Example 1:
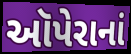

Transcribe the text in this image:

ઑપેરાનાં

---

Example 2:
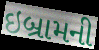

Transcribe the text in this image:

ઇબ્રામની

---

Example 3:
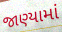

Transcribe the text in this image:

જાણ્યામાં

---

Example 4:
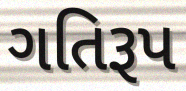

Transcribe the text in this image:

ગતિરૂપ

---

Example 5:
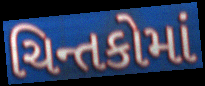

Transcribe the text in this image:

ચિન્તકોમાં